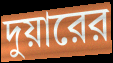
দুয়ারের